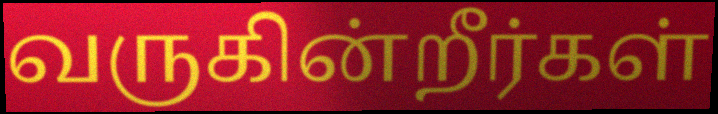
வருகின்றீர்கள்